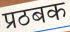
प्रठबक